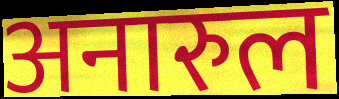
अनारुल